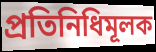
প্ৰতিনিধিমূলক